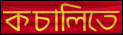
কচালিতে